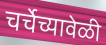
चर्चेच्यावेळी